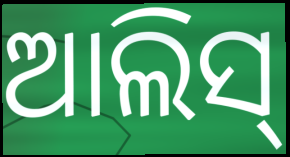
ଆଲିସ୍